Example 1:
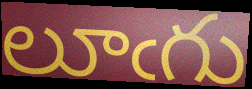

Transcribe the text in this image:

లూఁగు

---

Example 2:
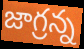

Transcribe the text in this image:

జాగ్రన్న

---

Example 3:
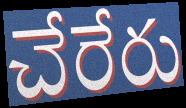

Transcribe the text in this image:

చేరేరు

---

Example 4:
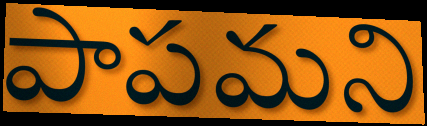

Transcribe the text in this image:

పాపమని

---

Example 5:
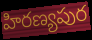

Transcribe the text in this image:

హిరణ్యపుర